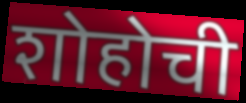
शोहोची